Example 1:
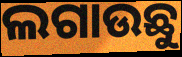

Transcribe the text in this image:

ଲଗାଉଛୁ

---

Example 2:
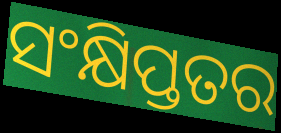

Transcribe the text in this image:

ସଂକ୍ଷିପ୍ତତର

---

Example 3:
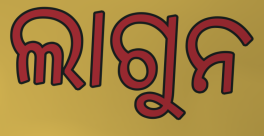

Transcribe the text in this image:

ଲାଗୁନ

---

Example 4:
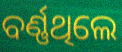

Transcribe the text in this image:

ବର୍ଣ୍ଣଥିଲେ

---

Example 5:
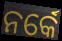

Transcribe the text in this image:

ନର୍କେ